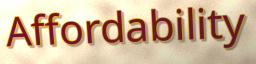
Affordability